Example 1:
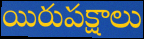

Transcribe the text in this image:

యిరుపక్షాలు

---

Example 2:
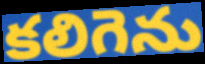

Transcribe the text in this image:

కలిగెను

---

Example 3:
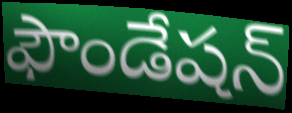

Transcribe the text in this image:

ఫౌండేషన్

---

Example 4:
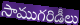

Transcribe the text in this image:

సాముగరిడీలు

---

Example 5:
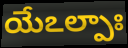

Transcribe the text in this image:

యేఽల్పాః